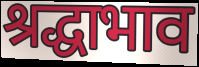
श्रद्धाभाव